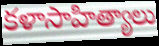
కళాసాహిత్యాలు